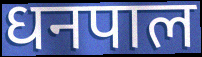
धनपाल